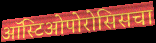
ऑस्टिओपोरोसिसचा